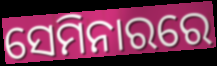
ସେମିନାରରେ